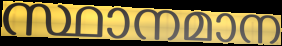
സ്ഥാനമാന